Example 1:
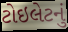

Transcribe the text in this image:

ટોઇલેટનું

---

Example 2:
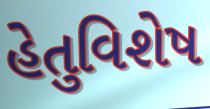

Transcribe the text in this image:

હેતુવિશેષ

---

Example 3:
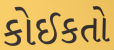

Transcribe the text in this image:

કોઈકતો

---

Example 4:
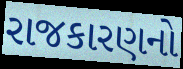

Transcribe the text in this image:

રાજકારણનો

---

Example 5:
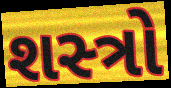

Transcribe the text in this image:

શસ્‍ત્રો